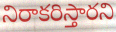
నిరాకరిస్తారని